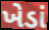
ખેડાં